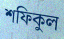
শফিকুল